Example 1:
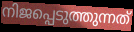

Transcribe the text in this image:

നിജപ്പെടുത്തുന്നത്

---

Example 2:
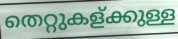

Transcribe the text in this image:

തെറ്റുകള്ക്കുള്ള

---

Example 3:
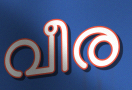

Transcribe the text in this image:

വീര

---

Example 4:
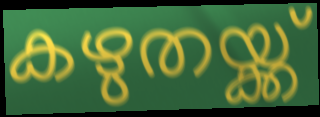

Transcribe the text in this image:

കഴുതയ്ക്ക്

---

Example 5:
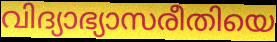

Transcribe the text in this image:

വിദ്യാഭ്യാസരീതിയെ